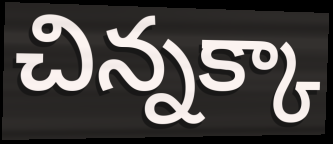
చిన్నక్కా